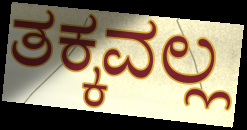
ತಕ್ಕವಲ್ಲ